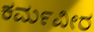
ಕರ್ಮವೀರ